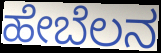
ಹೇಬೆಲನ